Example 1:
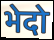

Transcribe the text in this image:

भेदो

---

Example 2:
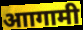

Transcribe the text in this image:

आागामी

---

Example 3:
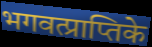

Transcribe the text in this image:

भगवत्प्राप्तिके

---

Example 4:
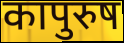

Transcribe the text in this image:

कापुरुष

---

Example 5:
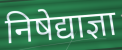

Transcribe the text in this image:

निषेद्याज्ञा